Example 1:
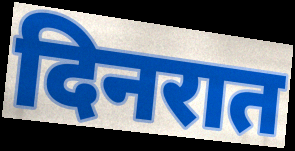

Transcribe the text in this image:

दिनरात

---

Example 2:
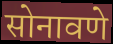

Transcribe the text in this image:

सोनावणे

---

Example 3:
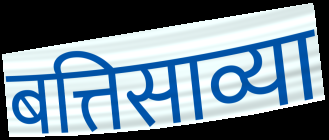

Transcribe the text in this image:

बत्तिसाव्या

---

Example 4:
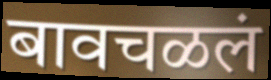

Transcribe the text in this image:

बावचळलं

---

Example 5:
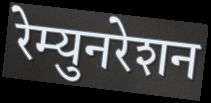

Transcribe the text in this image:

रेम्युनरेशन